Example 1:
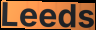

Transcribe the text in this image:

Leeds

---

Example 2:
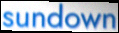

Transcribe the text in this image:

sundown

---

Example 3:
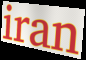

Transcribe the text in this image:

iran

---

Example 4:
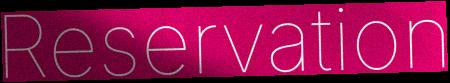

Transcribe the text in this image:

Reservation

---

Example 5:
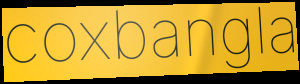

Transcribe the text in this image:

coxbangla